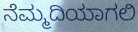
ನೆಮ್ಮದಿಯಾಗಲಿ